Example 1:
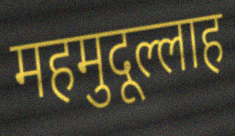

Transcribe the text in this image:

महमुदूल्लाह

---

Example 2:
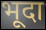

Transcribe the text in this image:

भूदा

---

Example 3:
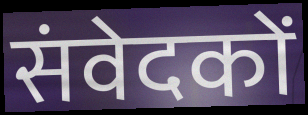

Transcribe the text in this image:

संवेदकों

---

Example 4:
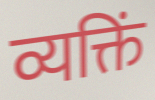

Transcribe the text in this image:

व्यक्तिं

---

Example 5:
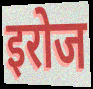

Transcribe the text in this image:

इरोज